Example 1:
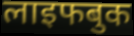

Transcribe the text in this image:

लाइफबुक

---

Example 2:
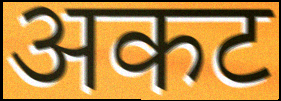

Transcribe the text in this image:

अकट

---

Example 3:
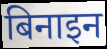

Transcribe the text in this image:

बिनाइन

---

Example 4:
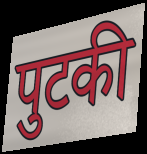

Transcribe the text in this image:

पुटकी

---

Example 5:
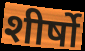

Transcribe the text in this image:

शीर्षो